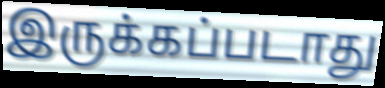
இருக்கப்படாது